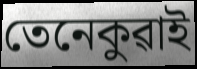
তেনেকুৱাই